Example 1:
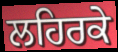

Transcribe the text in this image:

ਲਹਿਰਕੇ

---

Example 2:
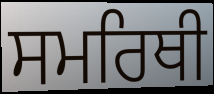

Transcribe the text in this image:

ਸਮਰਿਥੀ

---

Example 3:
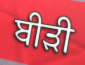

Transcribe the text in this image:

ਬੀਡ਼ੀ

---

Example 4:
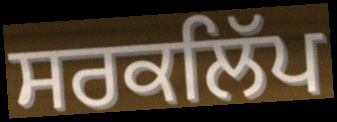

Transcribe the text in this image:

ਸਰਕਲਿੱਪ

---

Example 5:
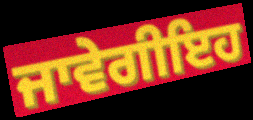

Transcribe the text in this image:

ਜਾਵੇਗੀਇਹ